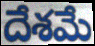
దేశమే